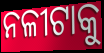
ନଳୀଟାକୁ